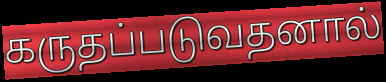
கருதப்படுவதனால்